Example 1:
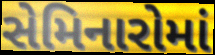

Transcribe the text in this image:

સેમિનારોમાં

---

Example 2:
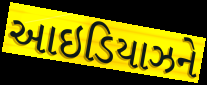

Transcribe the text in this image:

આઇડિયાઝને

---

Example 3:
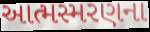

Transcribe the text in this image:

આત્મસ્મરણના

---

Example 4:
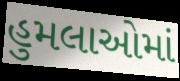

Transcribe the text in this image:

હુમલાઓમાં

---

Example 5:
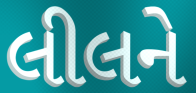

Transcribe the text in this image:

લીલને